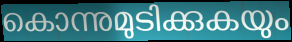
കൊന്നുമുടിക്കുകയും